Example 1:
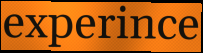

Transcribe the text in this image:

experince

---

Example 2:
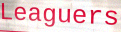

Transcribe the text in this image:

Leaguers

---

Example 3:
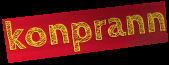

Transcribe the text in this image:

konprann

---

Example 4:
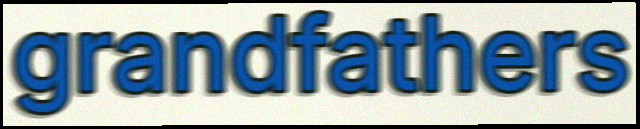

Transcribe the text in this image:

grandfathers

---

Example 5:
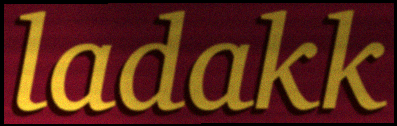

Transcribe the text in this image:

ladakk